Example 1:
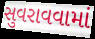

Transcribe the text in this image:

સુવરાવવામાં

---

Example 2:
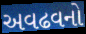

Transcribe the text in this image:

અવઢવનો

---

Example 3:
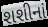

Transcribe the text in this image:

શશીનાં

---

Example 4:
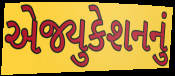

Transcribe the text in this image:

એજ્યુકેશનનું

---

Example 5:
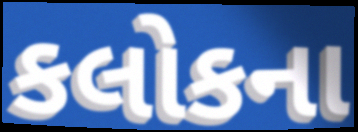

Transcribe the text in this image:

કલોકના